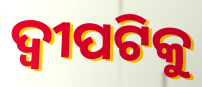
ଦ୍ୱୀପଟିକୁ